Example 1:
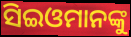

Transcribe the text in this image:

ସିଇଓମାନଙ୍କୁ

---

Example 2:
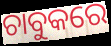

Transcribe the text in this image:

ଚାବୁକରେ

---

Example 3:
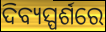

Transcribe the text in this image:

ଦିବ୍ୟସ୍ପର୍ଶରେ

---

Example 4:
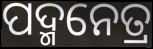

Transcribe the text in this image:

ପଦ୍ମନେତ୍ର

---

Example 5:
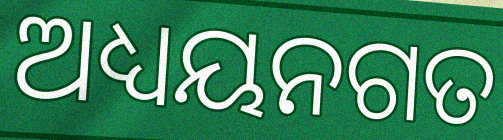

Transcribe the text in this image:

ଅଧ୍ୟୟନଗତ